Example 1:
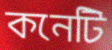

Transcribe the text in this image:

কনেটি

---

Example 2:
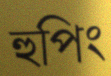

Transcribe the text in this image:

হুপিং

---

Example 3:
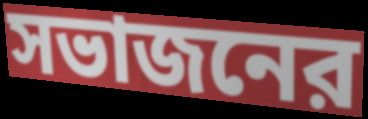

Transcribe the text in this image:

সভাজনের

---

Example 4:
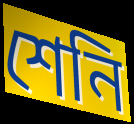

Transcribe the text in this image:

শেনি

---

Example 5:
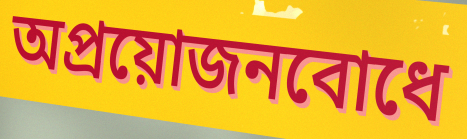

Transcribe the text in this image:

অপ্রয়োজনবোধে